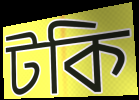
টকি